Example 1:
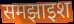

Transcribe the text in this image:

समझाइश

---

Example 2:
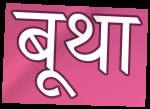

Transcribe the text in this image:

बूथा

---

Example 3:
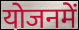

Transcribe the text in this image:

योजनमें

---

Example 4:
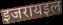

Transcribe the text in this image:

इजरायइल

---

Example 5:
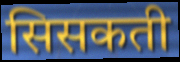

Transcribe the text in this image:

सिसकती